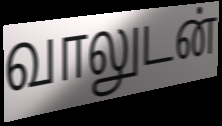
வாலுடன்